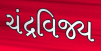
ચંદ્રવિજ્ય